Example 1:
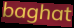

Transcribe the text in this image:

baghat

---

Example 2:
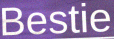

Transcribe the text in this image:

Bestie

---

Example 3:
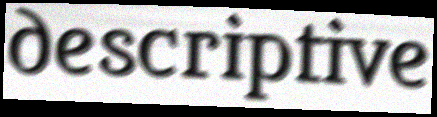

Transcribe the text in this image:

descriptive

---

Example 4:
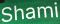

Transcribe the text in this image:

Shami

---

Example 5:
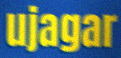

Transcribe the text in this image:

ujagar